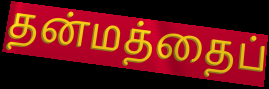
தன்மத்தைப்